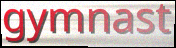
gymnast